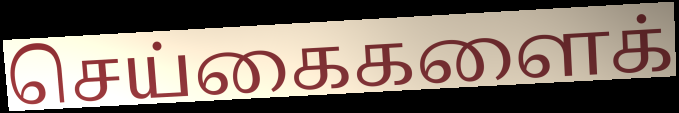
செய்கைகளைக்